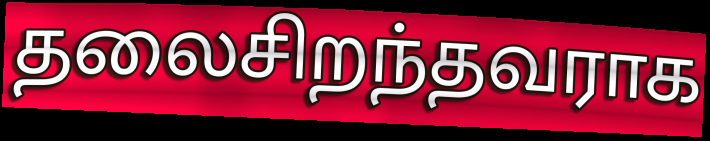
தலைசிறந்தவராக